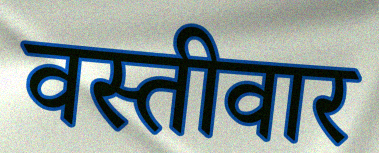
वस्तीवार